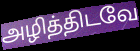
அழித்திடவே